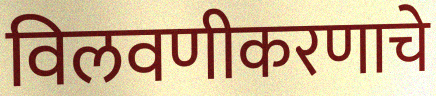
विलवणीकरणाचे